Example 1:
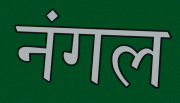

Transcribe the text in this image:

नंगल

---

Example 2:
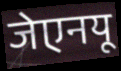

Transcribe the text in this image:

जेएनयू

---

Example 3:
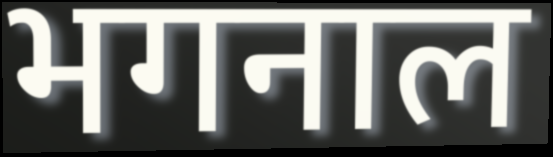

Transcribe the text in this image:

भगनाल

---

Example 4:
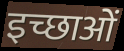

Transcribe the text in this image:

इच्छाओं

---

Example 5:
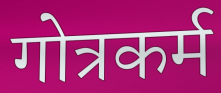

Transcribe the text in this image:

गोत्रकर्म